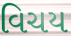
વિચય